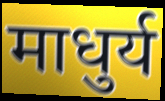
माधुर्य